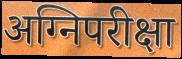
अग्निपरीक्षा